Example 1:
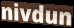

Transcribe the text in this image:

nivdun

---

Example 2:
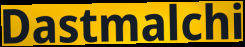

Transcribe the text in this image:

Dastmalchi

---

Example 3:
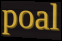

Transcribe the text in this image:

poal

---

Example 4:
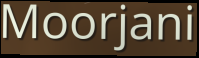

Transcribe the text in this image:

Moorjani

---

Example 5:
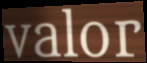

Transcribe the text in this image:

valor